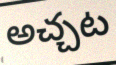
అచ్చట